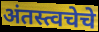
अंतस्त्वचेचे